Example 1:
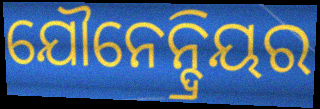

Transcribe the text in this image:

ଯୌନେନ୍ଦ୍ରିୟର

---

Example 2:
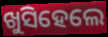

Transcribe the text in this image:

ଖୁସିହେଲେ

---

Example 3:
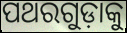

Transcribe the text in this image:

ପଥରଗୁଡ଼ାକୁ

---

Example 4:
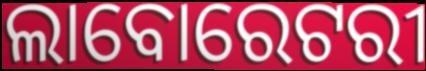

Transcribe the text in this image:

ଲାବୋରେଟରୀ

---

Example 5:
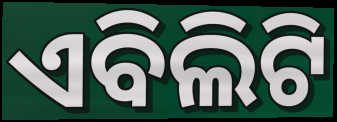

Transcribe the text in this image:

ଏବିଲିଟି